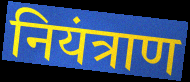
नियंत्राण